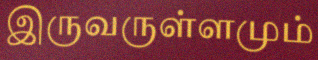
இருவருள்ளமும்